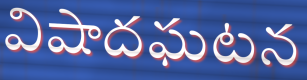
విషాదఘటన